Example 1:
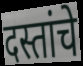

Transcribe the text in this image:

दस्तांचे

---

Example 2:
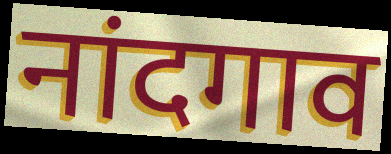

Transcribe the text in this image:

नांदगाव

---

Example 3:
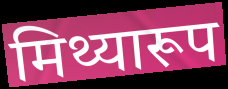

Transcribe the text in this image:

मिथ्यारूप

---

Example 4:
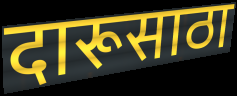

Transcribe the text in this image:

दारूसाठा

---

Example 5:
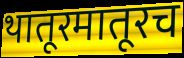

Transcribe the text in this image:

थातूरमातूरच